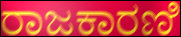
ರಾಜಕಾರಣಿ